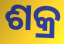
ଶକ୍ର